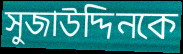
সুজাউদ্দিনকে